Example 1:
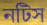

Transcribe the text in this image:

নটিস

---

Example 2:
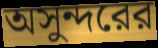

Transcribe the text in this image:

অসুন্দরের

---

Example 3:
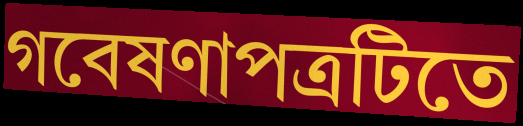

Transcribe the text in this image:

গবেষণাপত্রটিতে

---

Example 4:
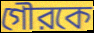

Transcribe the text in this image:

গৌরকে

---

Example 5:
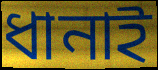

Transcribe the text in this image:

ধানাই